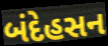
બંદેહસન